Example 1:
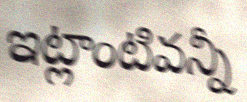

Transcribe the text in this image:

ఇట్లాంటివన్నీ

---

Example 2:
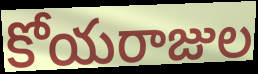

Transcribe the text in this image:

కోయరాజుల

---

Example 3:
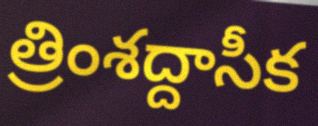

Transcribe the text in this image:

త్రింశద్దాసీక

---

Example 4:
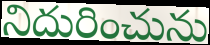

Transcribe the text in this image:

నిదురించును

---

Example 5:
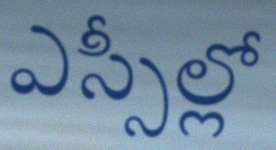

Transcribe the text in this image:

ఎస్సీల్లో